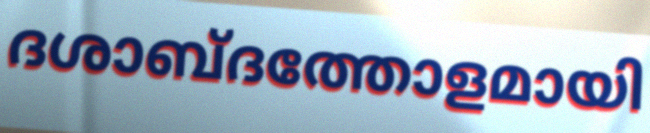
ദശാബ്ദത്തോളമായി